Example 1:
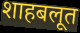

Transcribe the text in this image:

शाहबलूत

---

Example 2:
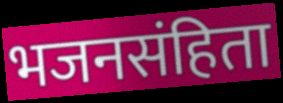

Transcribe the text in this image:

भजनसंहिता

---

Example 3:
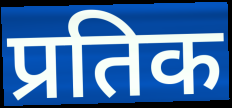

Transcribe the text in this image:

प्रतिक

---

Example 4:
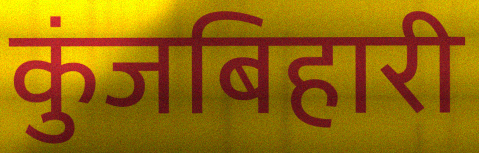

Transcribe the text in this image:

कुंजबिहारी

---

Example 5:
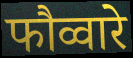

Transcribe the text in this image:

फौव्वारे